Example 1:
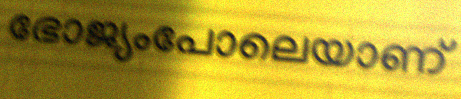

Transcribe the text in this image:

ഭോജ്യംപോലെയാണ്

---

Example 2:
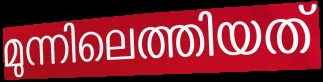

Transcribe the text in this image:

മുന്നിലെത്തിയത്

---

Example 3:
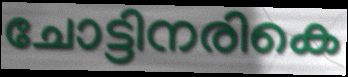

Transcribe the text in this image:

ചോട്ടിനരികെ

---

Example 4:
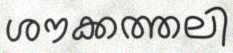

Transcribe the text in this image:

ശൗക്കത്തലി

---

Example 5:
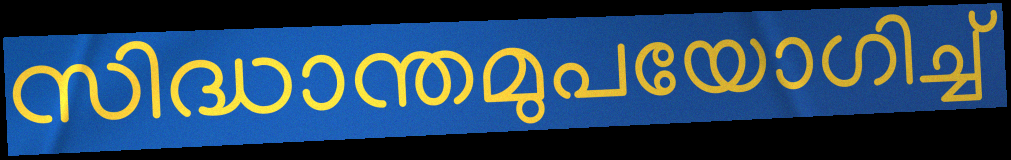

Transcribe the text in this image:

സിദ്ധാന്തമുപയോഗിച്ച്